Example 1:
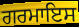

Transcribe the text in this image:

ਗਰਮਾਇਸ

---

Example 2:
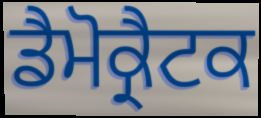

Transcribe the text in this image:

ਡੈਮੋਕ੍ਰੈਟਕ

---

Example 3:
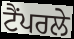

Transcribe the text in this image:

ਟੈਂਪਰਲੇ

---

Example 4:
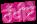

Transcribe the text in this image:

ਰੱਖੀਏ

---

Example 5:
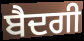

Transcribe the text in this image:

ਬੈਦਗੀ